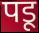
पडू